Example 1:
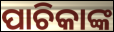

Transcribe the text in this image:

ପାଚିକାଙ୍କ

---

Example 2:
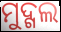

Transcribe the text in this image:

ମୁଦ୍ଗଲ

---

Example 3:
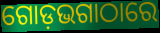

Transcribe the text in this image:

ଗୋଡ଼ଭଗାଠାରେ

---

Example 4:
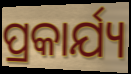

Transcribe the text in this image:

ପ୍ରକାର୍ଯ୍ୟ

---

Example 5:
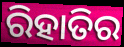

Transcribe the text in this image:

ରିହାତିର